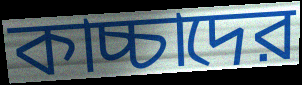
কাচ্চাদের